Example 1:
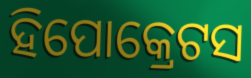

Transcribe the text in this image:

ହିପୋକ୍ରେଟସ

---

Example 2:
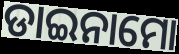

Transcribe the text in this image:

ଡାଇନାମୋ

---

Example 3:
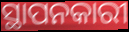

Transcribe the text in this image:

ସ୍ଥାପନକାରୀ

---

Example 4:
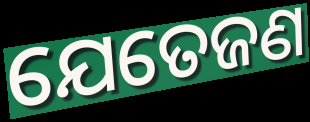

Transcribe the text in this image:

ଯେତେଜଣ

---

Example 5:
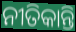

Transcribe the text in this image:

ନୀତିକାନ୍ତି